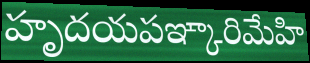
హృదయపఞ్కారిమేహి